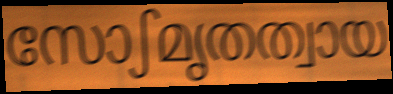
സോഽമൃതത്വായ